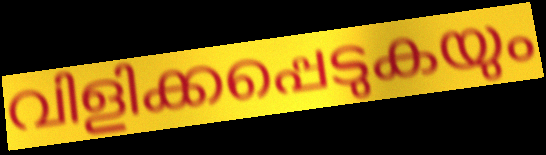
വിളിക്കപ്പെടുകയും